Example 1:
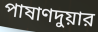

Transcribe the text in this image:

পাষাণদুয়ার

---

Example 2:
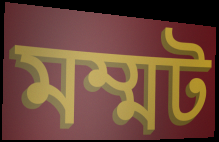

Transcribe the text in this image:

মম্মট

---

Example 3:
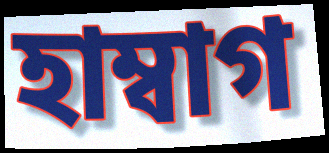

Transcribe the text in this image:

হাম্বাগ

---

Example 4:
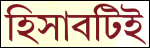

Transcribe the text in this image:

হিসাবটিই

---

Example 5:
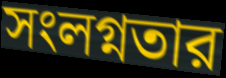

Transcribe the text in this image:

সংলগ্নতার